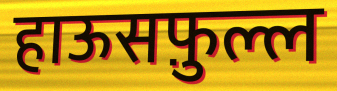
हाऊसफ़ुल्ल